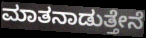
ಮಾತನಾಡುತ್ತೇನೆ